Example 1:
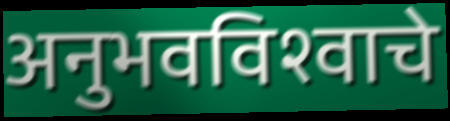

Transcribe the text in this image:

अनुभवविश्वाचे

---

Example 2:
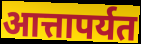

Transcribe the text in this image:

आत्तापर्यत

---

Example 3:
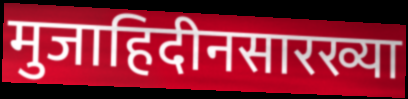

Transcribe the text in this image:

मुजाहिदीनसारख्या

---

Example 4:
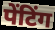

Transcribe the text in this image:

पेंटिंग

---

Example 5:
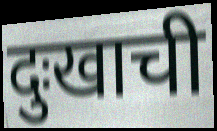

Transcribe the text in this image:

दुःखाची